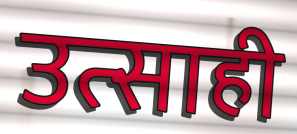
उत्साही